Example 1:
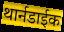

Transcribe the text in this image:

थार्नडाईक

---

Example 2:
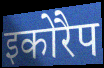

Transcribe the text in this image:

इकोरैप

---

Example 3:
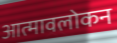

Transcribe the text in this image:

आत्‍मावलोकन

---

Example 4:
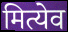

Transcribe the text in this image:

मित्येव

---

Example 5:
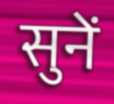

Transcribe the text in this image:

सुनें